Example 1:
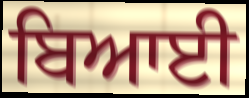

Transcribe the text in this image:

ਬਿਆਈ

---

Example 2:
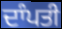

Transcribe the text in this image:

ਦਾੰਪਤੀ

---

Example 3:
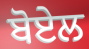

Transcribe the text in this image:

ਬੋਏਲ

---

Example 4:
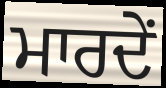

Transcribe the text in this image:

ਮਾਰਦੇਂ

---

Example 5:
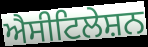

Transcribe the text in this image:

ਐਸੀਟਿਲੇਸ਼ਨ